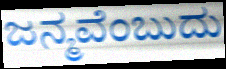
ಜನ್ಮವೆಂಬುದು